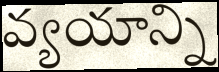
వ్యయాన్ని